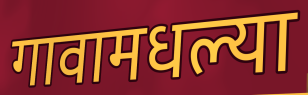
गावामधल्या